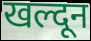
खल्दून